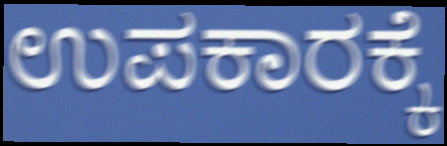
ಉಪಕಾರಕ್ಕೆ